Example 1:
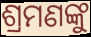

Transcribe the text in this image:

ଶ୍ରମଣଙ୍କୁ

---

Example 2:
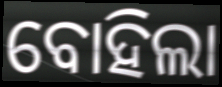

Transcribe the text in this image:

ବୋହିଲା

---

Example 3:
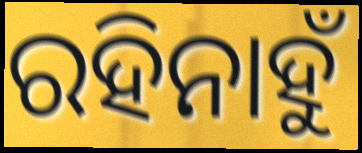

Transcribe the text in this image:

ରହିନାହୁଁ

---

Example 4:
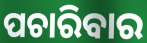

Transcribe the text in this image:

ପଚାରିବାର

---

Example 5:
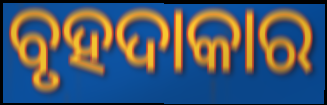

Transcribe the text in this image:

ବୃହଦାକାର